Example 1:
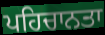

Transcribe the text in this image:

ਪਹਿਚਾਨਤਾ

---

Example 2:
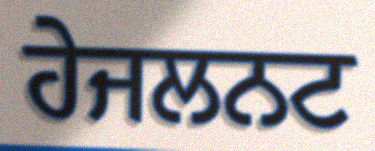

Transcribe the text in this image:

ਹੇਜਲਨਟ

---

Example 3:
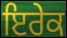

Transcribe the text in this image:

ਇਰੇਕ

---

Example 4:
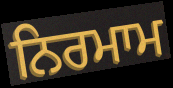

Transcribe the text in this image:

ਨਿਰਮਾਮ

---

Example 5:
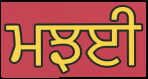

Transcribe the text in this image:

ਮਝਈ